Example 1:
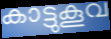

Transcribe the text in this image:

കാട്ടുകൂവ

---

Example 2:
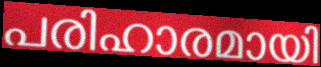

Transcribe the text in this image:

പരിഹാരമായി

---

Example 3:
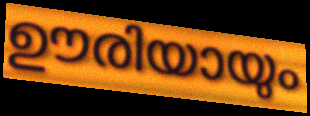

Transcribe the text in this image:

ഊരിയായും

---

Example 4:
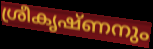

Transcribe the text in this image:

ശ്രീകൃഷ്ണനും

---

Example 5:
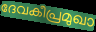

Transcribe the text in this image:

ദേവകീപ്രമുഖാ